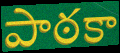
పాఠకా